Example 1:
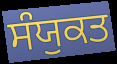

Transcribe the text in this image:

ਸੰਯੁਕਤ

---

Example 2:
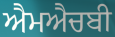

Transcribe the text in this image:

ਐਮਐਚਬੀ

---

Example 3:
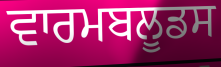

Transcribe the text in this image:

ਵਾਰਮਬਲੂਡਸ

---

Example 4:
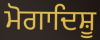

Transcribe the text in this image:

ਮੋਗਾਦਿਸ਼ੂ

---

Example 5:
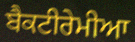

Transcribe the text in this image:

ਬੈਕਟੀਰੇਮੀਆ